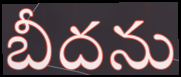
బీదను